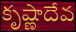
కృష్ణాదేవ